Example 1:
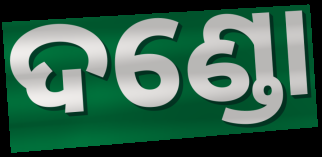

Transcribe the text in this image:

ଦଣ୍ଡୋ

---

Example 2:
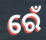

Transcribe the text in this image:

ରେଁ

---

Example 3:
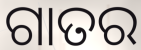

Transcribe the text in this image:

ଗାତର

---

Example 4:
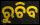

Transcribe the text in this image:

ରୁଚିବ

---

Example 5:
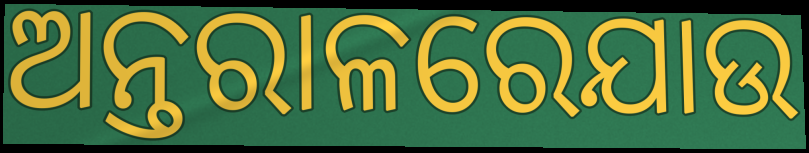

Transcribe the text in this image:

ଅନ୍ତରାଳରେଯାଉ